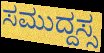
ಸಮುದ್ದಸ್ಸ